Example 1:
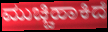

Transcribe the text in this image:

ಮುಚ್ಚಿಹಾಕಿದೆ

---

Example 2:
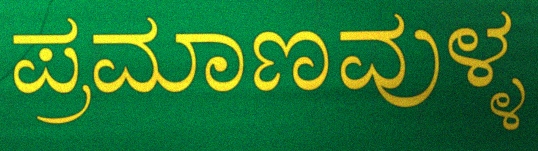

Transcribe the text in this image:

ಪ್ರಮಾಣವುಳ್ಳ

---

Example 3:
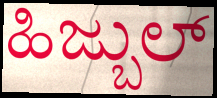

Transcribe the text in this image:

ಹಿಜ್ಬುಲ್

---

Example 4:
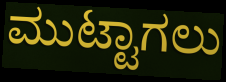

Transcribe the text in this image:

ಮುಟ್ಟಾಗಲು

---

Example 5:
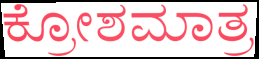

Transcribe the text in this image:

ಕ್ರೋಶಮಾತ್ರ